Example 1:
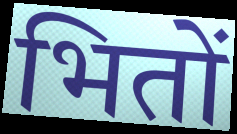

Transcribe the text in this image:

भितों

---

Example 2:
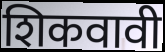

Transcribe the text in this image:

शिकवावी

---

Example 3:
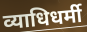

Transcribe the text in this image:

व्याधिधर्मी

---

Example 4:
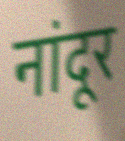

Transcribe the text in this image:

नांदूर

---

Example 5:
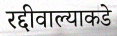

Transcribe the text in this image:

रद्दीवाल्याकडे